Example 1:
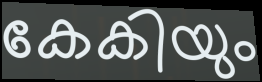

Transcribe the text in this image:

കേകിയും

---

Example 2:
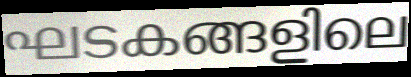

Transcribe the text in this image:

ഘടകങ്ങളിലെ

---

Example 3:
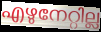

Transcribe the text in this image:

എഴുനേറ്റില്ല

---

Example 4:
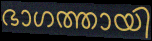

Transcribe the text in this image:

ഭാഗത്തായി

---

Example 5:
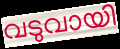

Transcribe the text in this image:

വടുവായി